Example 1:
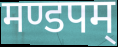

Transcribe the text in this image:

मण्डपम्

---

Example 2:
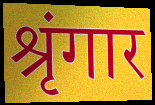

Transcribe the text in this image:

श्रृंगार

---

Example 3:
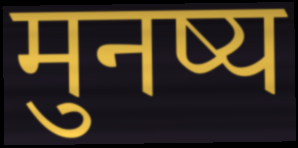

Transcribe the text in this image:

मुनष्य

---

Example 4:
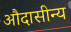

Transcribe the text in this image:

औदासीन्य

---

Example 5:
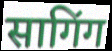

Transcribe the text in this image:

सागिंग